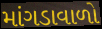
માંગડાવાળો